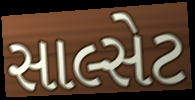
સાલ્સેટ